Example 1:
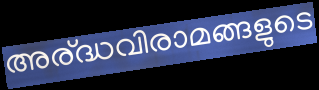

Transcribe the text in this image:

അര്ദ്ധവിരാമങ്ങളുടെ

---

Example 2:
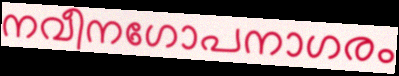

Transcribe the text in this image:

നവീനഗോപനാഗരം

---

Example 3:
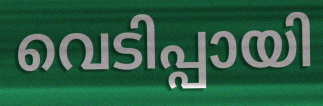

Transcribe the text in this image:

വെടിപ്പായി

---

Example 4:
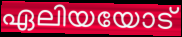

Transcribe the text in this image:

ഏലിയയോട്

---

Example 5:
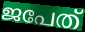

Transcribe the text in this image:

ജപേത്